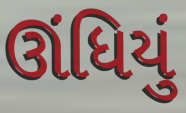
ઊંધિયું